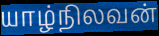
யாழ்நிலவன்